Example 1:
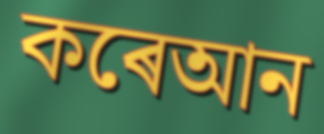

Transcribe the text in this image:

কৰেআন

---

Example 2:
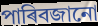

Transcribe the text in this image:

পাৰিবজানো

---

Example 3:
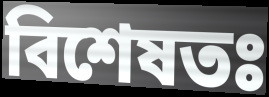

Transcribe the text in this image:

বিশেষতঃ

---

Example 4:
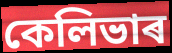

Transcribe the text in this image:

কেলিভাৰ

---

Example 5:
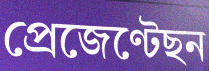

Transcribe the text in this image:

প্ৰেজেণ্টেছন